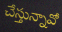
చేస్తున్నావో